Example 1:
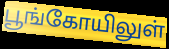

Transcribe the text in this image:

பூங்கோயிலுள்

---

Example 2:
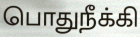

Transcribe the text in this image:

பொதுநீக்கி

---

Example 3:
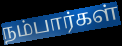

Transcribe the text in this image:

நம்பார்கள்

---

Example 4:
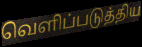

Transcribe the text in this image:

வெளிப்படுத்திய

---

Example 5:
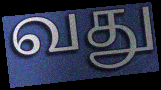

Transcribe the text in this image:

வது